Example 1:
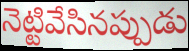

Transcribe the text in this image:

నెట్టివేసినప్పుడు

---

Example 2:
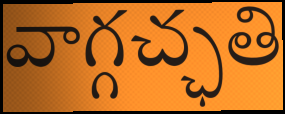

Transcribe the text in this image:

వాగ్గచ్ఛతి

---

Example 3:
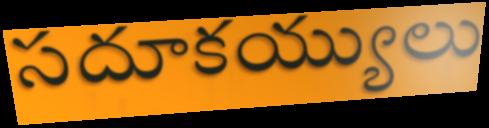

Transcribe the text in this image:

సదూకయ్యులు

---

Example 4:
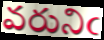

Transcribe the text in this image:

వరునిఁ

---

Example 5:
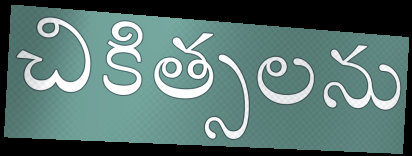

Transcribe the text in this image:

చికిత్సలను